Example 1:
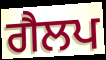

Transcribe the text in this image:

ਗੈਲਪ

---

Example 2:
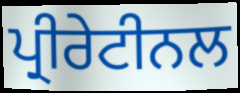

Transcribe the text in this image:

ਪ੍ਰੀਰੇਟੀਨਲ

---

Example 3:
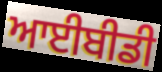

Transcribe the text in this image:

ਆਈਬੀਡੀ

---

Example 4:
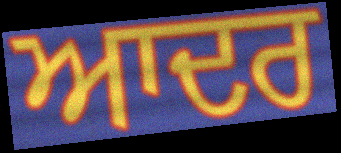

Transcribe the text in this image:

ਆਦਰ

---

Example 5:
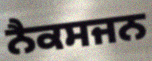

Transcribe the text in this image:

ਨੈਕਸਜਨ